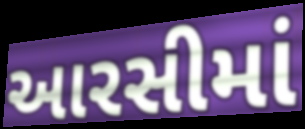
આરસીમાં